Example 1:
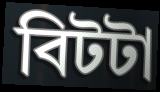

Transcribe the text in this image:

বিটটা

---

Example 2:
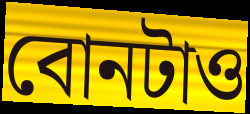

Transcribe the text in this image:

বোনটাও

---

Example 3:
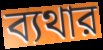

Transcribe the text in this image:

ব্যথার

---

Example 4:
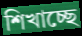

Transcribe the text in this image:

শিখাচ্ছে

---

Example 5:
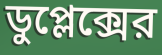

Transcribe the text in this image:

ডুপ্লেক্সের